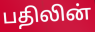
பதிலின்